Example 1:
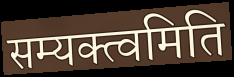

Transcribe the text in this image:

सम्यक्त्वमिति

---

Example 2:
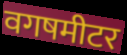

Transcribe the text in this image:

वगषमीटर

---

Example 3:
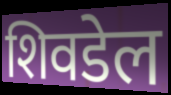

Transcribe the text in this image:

शिवडेल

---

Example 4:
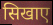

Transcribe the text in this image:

सिखाए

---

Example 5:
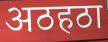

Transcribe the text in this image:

अठहठा